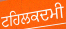
ਟਹਿਲਕਦਮੀ